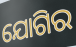
ଯୋଗିର